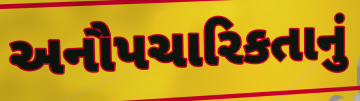
અનૌપચારિકતાનું